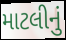
માટલીનું